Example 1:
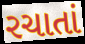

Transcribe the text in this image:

રચાતાં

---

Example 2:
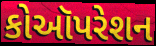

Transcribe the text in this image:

કોઑપરેશન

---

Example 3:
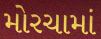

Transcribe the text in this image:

મોરચામાં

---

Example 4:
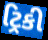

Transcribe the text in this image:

ટ્રિકી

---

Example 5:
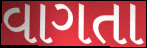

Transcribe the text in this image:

વાગતા